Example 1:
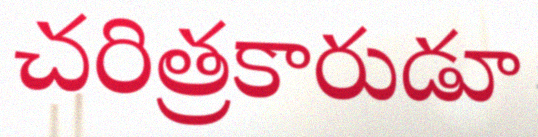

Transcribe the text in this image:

చరిత్రకారుడూ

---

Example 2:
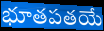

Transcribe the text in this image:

భూతపతయే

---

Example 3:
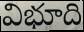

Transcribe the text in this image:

విభూది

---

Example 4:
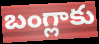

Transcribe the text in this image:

బంగ్లాకు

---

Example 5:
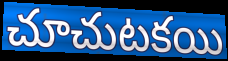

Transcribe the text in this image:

చూచుటకయి